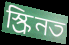
স্ক্ৰিনত